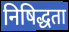
निषिद्धता